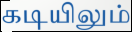
கடியிலும்